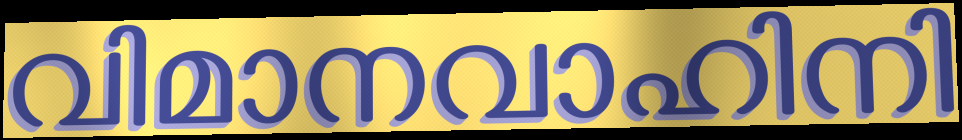
വിമാനവാഹിനി